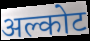
अल्कोट